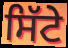
ਸਿੱਟੇ